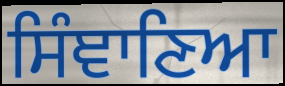
ਸਿੰਞਾਣਿਆ